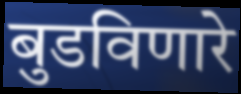
बुडविणारे